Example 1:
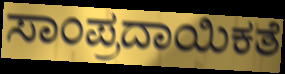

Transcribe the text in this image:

ಸಾಂಪ್ರದಾಯಿಕತೆ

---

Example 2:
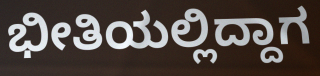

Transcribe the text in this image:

ಭೀತಿಯಲ್ಲಿದ್ದಾಗ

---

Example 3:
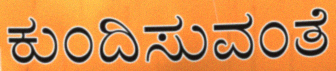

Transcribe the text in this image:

ಕುಂದಿಸುವಂತೆ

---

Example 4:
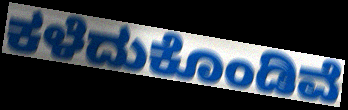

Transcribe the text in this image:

ಕಳೆದುಕೊಂಡಿವೆ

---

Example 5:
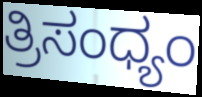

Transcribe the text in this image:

ತ್ರಿಸಂಧ್ಯಂ